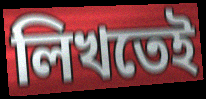
লিখতেই